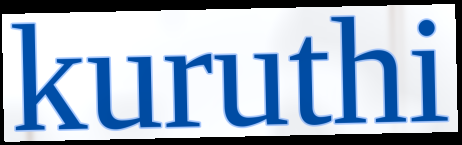
kuruthi